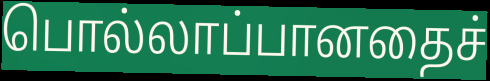
பொல்லாப்பானதைச்